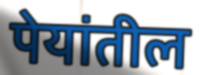
पेयांतील